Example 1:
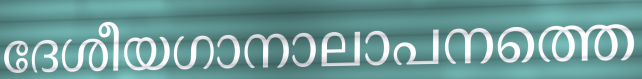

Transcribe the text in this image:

ദേശീയഗാനാലാപനത്തെ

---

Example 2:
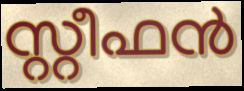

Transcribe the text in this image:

സ്റ്റീഫൻ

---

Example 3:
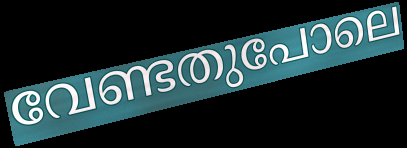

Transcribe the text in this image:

വേണ്ടതുപോലെ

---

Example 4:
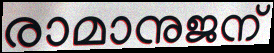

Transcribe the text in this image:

രാമാനുജന്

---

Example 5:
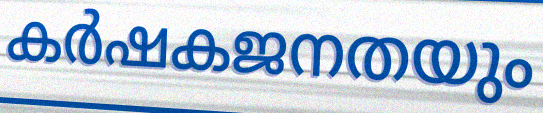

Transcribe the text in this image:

കർഷകജനതയും